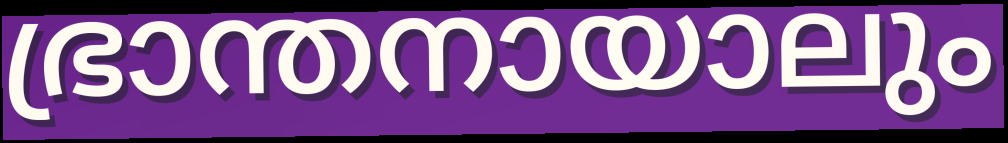
ഭ്രാന്തനായാലും